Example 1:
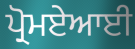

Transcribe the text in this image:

ਪ੍ਰੋਮਏਆਈ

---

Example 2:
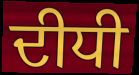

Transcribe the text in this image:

ਦੀਧੀ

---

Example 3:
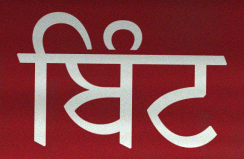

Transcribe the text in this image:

ਬਿੰਟ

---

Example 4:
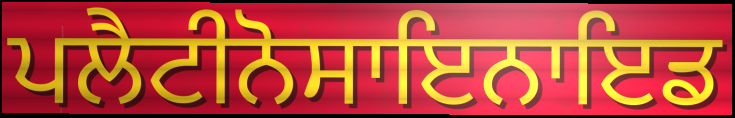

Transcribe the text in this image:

ਪਲੈਟੀਨੋਸਾਇਨਾਇਡ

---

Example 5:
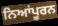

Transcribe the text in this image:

ਨਿਆਂਪੂਰਨ